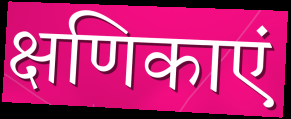
क्षणिकाएं